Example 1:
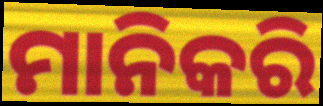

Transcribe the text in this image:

ମାନିକରି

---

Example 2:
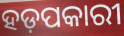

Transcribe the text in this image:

ହଡ଼ପକାରୀ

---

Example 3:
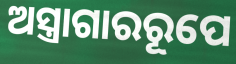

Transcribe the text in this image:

ଅସ୍ତ୍ରାଗାରରୂପେ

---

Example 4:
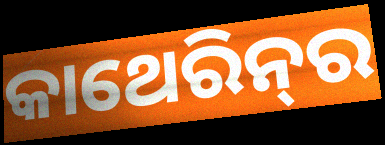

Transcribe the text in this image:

କାଥେରିନ୍‌ର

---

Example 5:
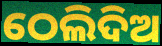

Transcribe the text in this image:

ଠେଲିଦିଅ